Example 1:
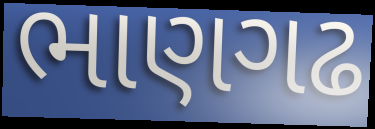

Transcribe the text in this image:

ભાણગઢ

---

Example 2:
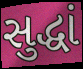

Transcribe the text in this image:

સુદ્ધાં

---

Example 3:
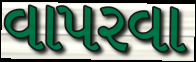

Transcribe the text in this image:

વાપરવા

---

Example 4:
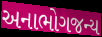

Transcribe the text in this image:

અનાભોગજન્ય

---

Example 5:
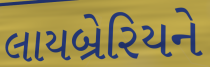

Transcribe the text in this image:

લાયબ્રેરિયને